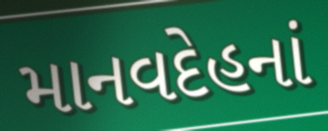
માનવદેહનાં